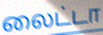
லைட்டா